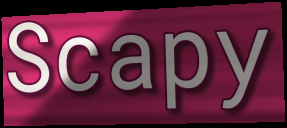
Scapy